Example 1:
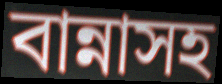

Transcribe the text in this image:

বান্নাসহ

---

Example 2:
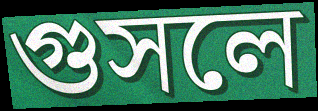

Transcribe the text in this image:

গুসলে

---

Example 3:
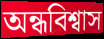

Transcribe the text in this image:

অন্ধবিশ্বাস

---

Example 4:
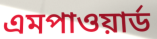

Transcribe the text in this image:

এমপাওয়ার্ড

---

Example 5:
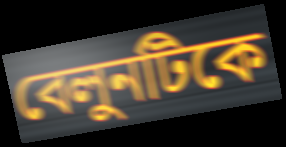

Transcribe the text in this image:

বেলুনটিকে